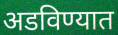
अडविण्यात